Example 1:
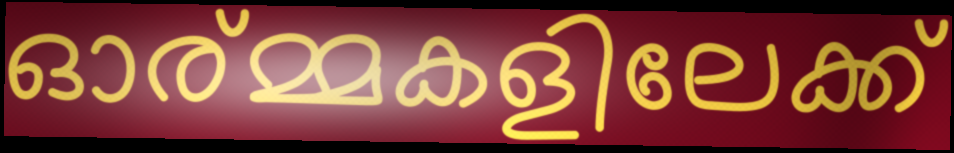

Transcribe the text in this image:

ഓര്മ്മകളിലേക്ക്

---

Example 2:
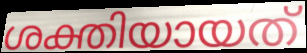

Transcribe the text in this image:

ശക്തിയായത്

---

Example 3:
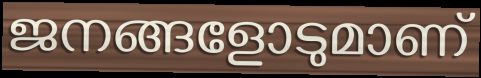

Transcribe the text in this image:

ജനങ്ങളോടുമാണ്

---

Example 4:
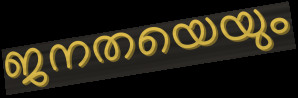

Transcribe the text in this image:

ജനതയെയും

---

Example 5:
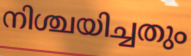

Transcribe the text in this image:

നിശ്ചയിച്ചതും